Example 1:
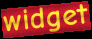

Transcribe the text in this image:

widget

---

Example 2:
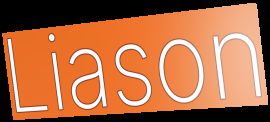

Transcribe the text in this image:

Liason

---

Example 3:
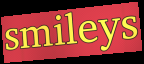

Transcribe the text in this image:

smileys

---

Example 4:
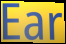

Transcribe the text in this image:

Ear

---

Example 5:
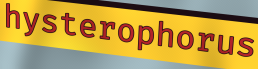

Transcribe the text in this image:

hysterophorus